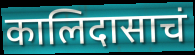
कालिदासाचं